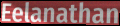
Eelanathan